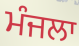
ਮੰਜਲਾ